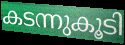
കടന്നുകൂടി